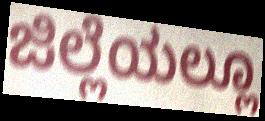
ಜಿಲ್ಲೆಯಲ್ಲೂ